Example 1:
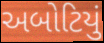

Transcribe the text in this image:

અબોટિયું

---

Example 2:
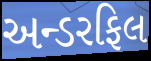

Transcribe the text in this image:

અન્ડરફિલ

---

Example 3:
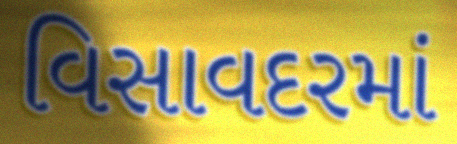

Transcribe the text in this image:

વિસાવદરમાં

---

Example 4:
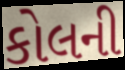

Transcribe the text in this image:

કોલની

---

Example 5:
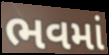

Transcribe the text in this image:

ભવમાં